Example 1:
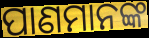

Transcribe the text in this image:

ପାଣମାନଙ୍କ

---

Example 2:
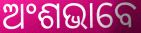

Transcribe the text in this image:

ଅଂଶଭାବେ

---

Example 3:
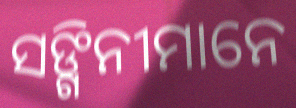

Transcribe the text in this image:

ସଙ୍ଗିନୀମାନେ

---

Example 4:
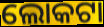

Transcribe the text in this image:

ଲୋକଟା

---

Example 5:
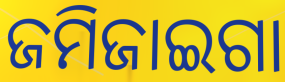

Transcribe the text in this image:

ଜମିଜାଇଗା